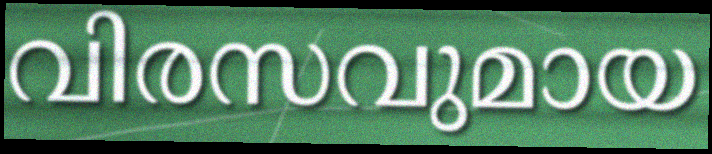
വിരസവുമായ